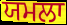
ਯਮਲਾ